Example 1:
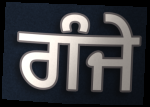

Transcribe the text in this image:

ਗੰਜੇ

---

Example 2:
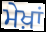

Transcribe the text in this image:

ਮੇਖ਼ਾਂ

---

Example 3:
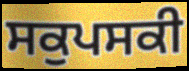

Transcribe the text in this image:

ਸਕੁਪਸਕੀ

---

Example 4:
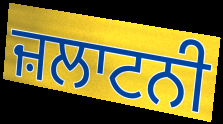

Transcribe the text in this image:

ਜ਼ਲਾਟਨੀ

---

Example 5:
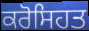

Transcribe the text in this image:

ਕਰੋਸਿਹਤ